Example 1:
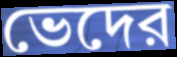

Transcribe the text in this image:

ভেদের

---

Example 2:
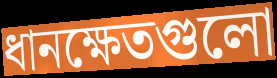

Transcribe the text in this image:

ধানক্ষেতগুলো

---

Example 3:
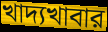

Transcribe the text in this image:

খাদ্যখাবার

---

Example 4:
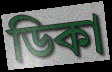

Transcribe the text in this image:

ডিকা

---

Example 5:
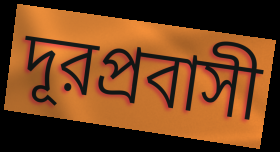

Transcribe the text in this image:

দূরপ্রবাসী